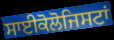
ਸਾਈਕੋਲੋਜਿਸਟਾਂ